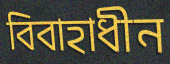
বিবাহাধীন